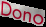
Dono